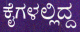
ಕೈಗಳಲ್ಲಿದ್ದ